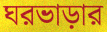
ঘরভাড়ার